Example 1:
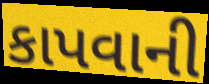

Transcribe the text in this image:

કાપવાની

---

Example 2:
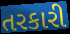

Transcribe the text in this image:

તરકારી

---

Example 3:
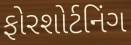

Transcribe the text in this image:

ફોરશોર્ટનિંગ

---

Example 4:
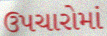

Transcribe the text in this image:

ઉપચારોમાં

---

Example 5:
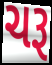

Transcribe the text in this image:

ચરૂ